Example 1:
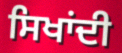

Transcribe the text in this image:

ਸਿਖਾਂਦੀ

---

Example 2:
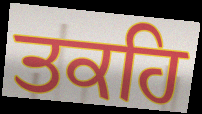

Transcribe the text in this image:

ਤਕਹਿ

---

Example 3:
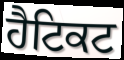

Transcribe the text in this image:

ਹੈਟਿਕਟ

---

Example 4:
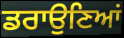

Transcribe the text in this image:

ਡਰਾਉਣਿਆਂ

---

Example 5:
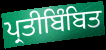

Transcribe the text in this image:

ਪ੍ਰਤੀਬਿੰਬਿਤ